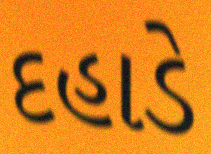
દહાડે